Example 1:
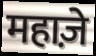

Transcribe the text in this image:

महाज़े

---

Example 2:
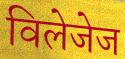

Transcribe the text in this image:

विलेजेज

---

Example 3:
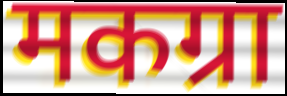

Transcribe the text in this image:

मकग्रा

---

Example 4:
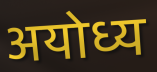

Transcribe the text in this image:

अयोध्य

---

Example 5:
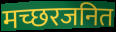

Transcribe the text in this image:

मच्छरजनित